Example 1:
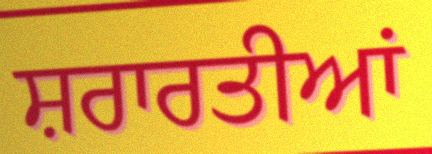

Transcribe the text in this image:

ਸ਼ਰਾਰਤੀਆਂ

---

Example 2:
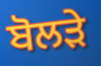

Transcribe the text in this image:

ਬੋਲੜੇ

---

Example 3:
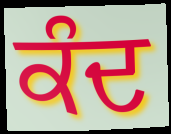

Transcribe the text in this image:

ਕੰਦ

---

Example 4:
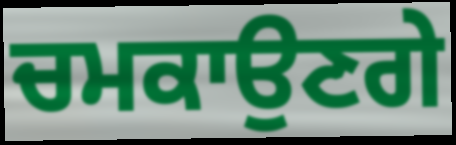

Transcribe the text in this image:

ਚਮਕਾਉਣਗੇ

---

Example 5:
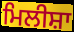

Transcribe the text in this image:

ਮਿਲੀਸ਼ਾ